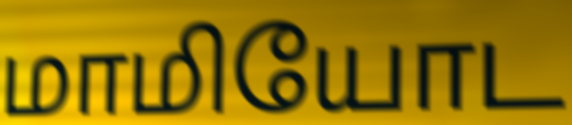
மாமியோட